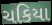
ચકિયા